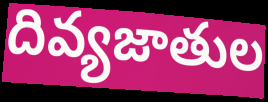
దివ్యజాతుల